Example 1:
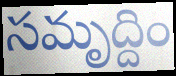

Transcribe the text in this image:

సమృద్దిం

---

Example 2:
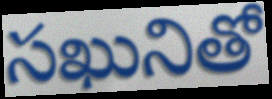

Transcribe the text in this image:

సఖునితో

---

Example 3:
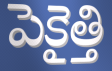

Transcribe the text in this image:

పెకైత్తి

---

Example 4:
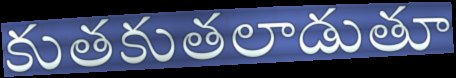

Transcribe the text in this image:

కుతకుతలాడుతూ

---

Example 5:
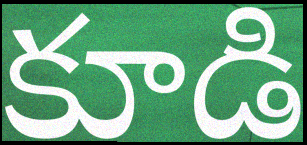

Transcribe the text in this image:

కూడి